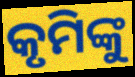
କୃମିଙ୍କୁ